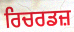
ਰਿਚਰਡਜ਼